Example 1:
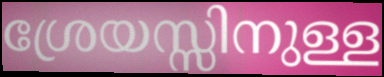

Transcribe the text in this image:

ശ്രേയസ്സിനുള്ള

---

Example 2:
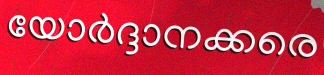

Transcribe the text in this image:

യോർദ്ദാനക്കരെ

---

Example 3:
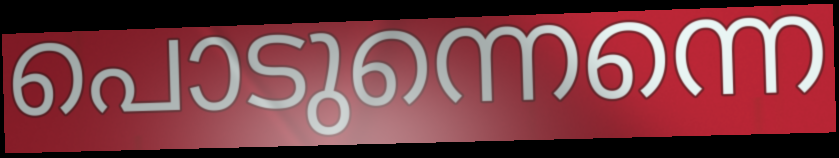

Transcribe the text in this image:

പൊടുന്നെന്നെ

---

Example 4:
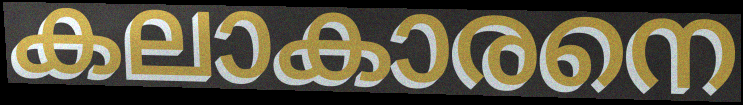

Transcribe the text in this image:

കലാകാരനെ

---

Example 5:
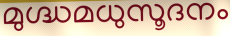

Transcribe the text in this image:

മുഗ്ദ്ധമധുസൂദനം